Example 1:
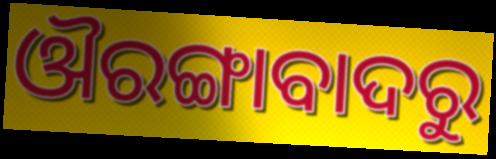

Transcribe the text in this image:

ଔରଙ୍ଗାବାଦରୁ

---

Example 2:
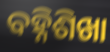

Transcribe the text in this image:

ବହ୍ନିଶିଖା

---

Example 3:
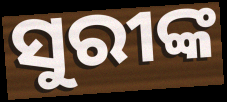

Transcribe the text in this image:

ସୁରୀଙ୍କ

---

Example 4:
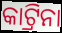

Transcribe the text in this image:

କାଟ୍ରିନା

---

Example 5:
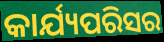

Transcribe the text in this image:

କାର୍ଯ୍ୟପରିସର